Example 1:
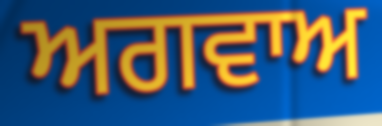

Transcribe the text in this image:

ਅਗਵਾਅ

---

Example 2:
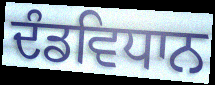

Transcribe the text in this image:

ਦੰਡਵਿਧਾਨ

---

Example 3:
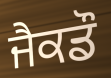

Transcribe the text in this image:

ਜੈਕਡੌ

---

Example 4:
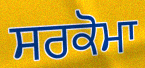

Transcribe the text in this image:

ਸਰਕੋਮਾ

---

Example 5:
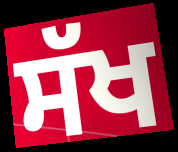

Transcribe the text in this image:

ਸੱਖ